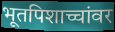
भूतपिशाच्चांवर